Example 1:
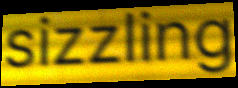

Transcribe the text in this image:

sizzling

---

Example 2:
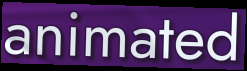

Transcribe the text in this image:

animated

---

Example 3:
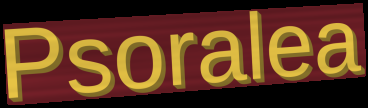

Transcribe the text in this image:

Psoralea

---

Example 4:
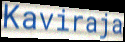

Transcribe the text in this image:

Kaviraja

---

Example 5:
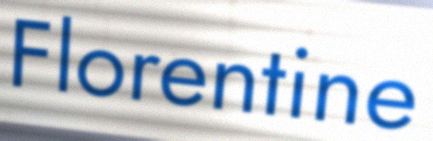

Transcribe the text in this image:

Florentine